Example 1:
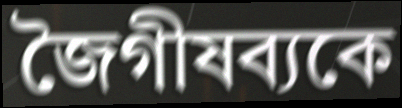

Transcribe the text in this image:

জৈগীষব্যকে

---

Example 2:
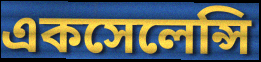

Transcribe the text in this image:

একসেলেন্সি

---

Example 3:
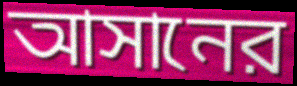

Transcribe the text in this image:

আসানের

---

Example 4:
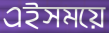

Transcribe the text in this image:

এইসময়ে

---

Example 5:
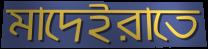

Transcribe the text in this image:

মাদেইরাতে